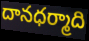
దానధర్మాది